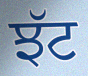
ਝੱਟ